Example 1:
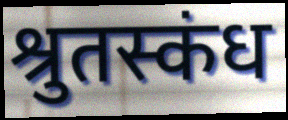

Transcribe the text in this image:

श्रुतस्कंध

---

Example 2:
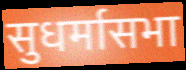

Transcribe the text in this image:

सुधर्मासभा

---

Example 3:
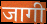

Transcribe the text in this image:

जागी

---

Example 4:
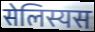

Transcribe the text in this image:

सेलिस्यस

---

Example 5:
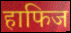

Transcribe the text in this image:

हाफिज